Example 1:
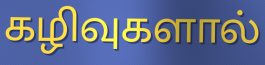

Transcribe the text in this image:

கழிவுகளால்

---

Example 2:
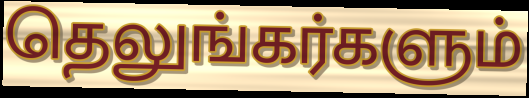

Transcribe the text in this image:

தெலுங்கர்களும்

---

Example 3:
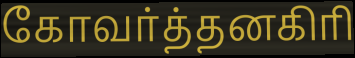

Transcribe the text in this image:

கோவர்த்தனகிரி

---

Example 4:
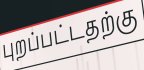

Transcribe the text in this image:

புறப்பட்டதற்கு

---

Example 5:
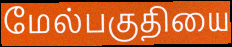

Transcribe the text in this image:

மேல்பகுதியை